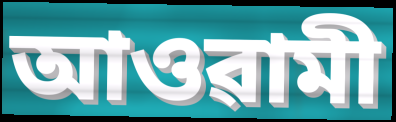
আওৱামী